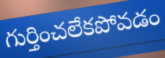
గుర్తించలేకపోవడం